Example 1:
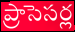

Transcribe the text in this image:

ప్రాసెసర్ల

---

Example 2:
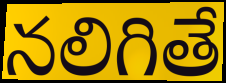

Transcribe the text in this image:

నలిగితే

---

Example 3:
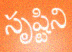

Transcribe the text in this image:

సృష్టిని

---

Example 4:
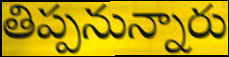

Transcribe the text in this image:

తిప్పనున్నారు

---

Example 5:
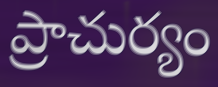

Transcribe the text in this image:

ప్రాచుర్యం